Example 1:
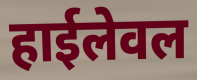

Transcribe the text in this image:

हाईलेवल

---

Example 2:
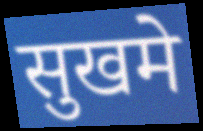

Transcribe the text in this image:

सुखमे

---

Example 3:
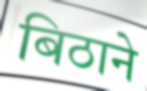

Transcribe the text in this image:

बिठाने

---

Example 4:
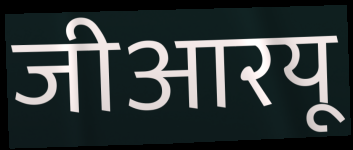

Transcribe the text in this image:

जीआरयू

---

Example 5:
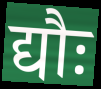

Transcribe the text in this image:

द्यौः